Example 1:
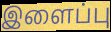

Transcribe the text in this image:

இளைப்பு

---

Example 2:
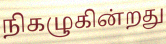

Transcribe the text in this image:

நிகழுகின்றது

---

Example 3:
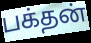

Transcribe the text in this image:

பக்தன்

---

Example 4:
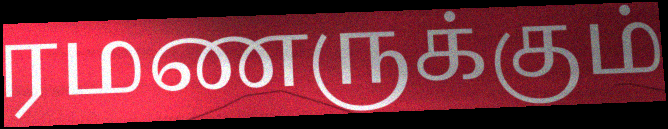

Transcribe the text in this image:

ரமணருக்கும்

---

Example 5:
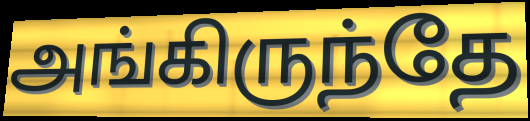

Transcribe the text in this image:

அங்கிருந்தே